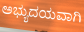
ಅಭ್ಯುದಯವಾಗಿ